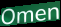
Omen